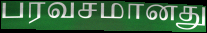
பரவசமானது